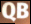
QB